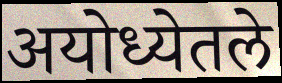
अयोध्येतले